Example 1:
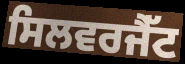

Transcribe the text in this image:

ਸਿਲਵਰਜੈੱਟ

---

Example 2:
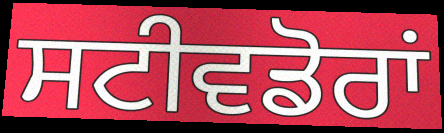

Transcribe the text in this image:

ਸਟੀਵਡੋਰਾਂ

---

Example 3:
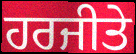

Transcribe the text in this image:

ਹਰਜੀਤੇ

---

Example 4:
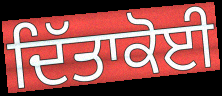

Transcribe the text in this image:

ਦਿੱਤਾਕੋਈ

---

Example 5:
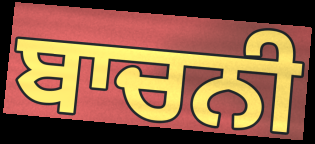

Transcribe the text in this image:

ਬਾਚਨੀ